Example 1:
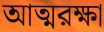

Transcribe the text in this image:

আত্মরক্ষা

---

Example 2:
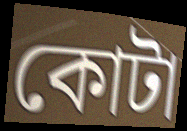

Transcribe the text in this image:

কোটা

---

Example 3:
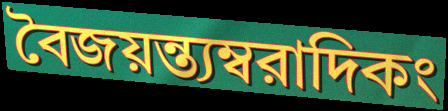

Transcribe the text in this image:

বৈজয়ন্ত্যম্বরাদিকং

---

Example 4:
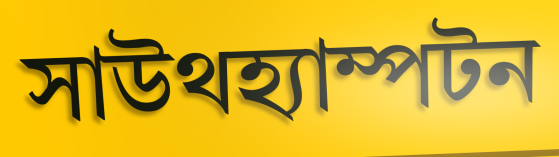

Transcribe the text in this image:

সাউথহ্যাম্পটন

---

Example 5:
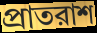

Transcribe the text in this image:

প্রাতরাশ